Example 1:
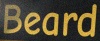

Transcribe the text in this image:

Beard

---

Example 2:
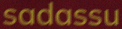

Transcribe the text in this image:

sadassu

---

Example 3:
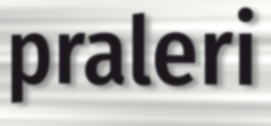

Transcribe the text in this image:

praleri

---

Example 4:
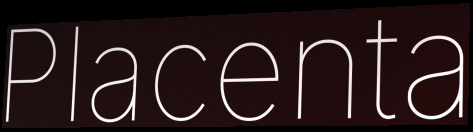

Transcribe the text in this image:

Placenta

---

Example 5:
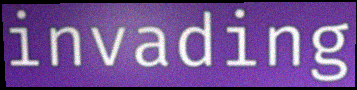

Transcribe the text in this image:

invading